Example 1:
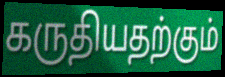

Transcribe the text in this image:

கருதியதற்கும்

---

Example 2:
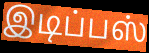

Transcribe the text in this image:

இடிப்பஸ்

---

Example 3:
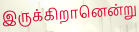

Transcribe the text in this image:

இருக்கிறானென்று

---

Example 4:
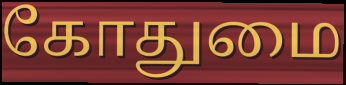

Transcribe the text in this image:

கோதுமை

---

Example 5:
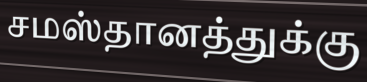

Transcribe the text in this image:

சமஸ்தானத்துக்கு